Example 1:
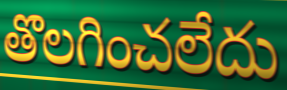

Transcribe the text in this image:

తొలగించలేదు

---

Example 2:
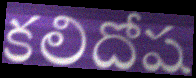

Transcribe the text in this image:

కలిదోష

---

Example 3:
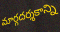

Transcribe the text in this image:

మార్గదర్శకాన్ని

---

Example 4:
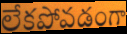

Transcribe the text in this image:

లేకపోవడంగా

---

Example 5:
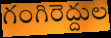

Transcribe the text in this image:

గంగిరెద్దుల